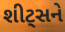
શીટ્સને